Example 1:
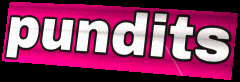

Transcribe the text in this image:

pundits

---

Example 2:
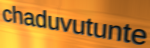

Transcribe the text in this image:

chaduvutunte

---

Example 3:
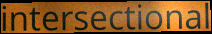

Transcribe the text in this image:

intersectional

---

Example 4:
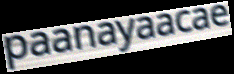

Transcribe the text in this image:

paanayaacae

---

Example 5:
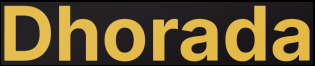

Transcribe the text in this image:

Dhorada